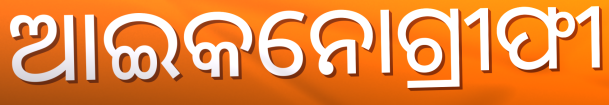
ଆଇକନୋଗ୍ରୀଫୀ